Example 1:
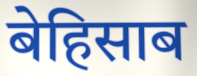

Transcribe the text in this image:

बेहिसाब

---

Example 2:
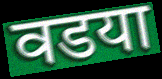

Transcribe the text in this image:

वडया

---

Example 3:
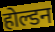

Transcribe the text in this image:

होल्डन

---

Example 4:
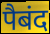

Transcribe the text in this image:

पैबंद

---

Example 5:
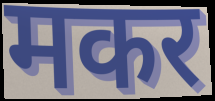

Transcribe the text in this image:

मकर